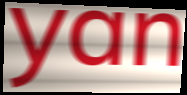
yan